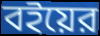
বইয়ের